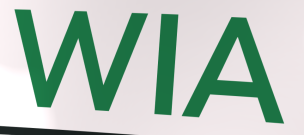
WIA